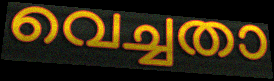
വെച്ചതാ